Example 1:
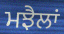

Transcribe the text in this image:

ਮਝੈਲਾਂ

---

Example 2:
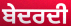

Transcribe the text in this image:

ਬੇਦਰਦੀ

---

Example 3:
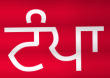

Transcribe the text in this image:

ਟੰਪਾ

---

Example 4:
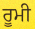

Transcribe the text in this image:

ਰੂਮੀ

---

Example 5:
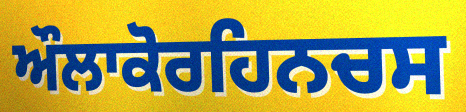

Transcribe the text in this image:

ਔਲਾਕੋਰਹਿਨਚਸ